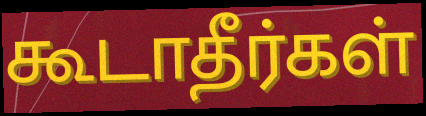
கூடாதீர்கள்